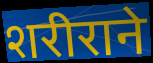
शरीराने